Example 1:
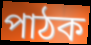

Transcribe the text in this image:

পাঠক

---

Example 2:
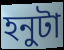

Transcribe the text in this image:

হনুটা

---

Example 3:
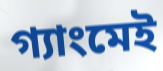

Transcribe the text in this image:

গ্যাংমেই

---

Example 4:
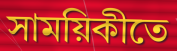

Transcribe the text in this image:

সাময়িকীতে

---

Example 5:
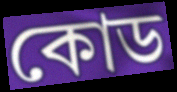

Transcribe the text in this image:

কোড